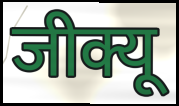
जीक्यू